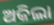
ଅକିଲା